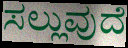
ಸಲ್ಲುವುದೆ